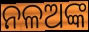
ନଳଅଙ୍କ